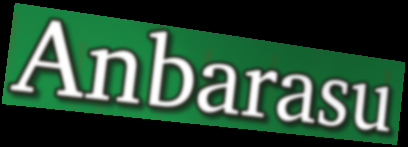
Anbarasu